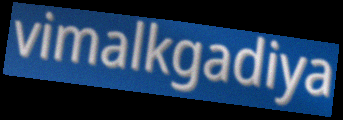
vimalkgadiya